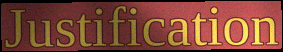
Justification